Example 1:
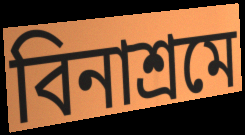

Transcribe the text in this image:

বিনাশ্রমে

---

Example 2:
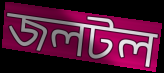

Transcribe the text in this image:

জলটল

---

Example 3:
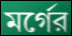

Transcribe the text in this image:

মর্গের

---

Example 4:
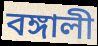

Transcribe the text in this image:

বঙ্গালী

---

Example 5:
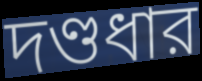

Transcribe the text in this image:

দণ্ডধার